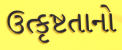
ઉત્કૃષ્ટતાનો